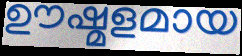
ഊഷ്മളമായ